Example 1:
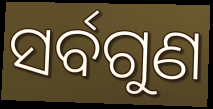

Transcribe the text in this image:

ସର୍ବଗୁଣ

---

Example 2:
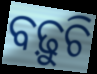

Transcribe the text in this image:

ବଢ଼ୁଚି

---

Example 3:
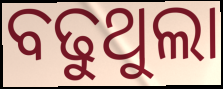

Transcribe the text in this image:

ବଢୁଥୁଲା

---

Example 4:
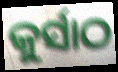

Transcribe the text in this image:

କୁର୍ସାଠ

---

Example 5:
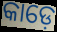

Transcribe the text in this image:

କାଡ଼େ